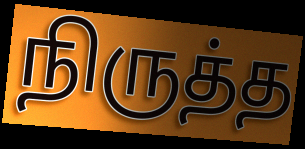
நிருத்த